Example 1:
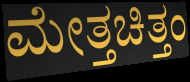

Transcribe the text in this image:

ಮೇತ್ತಚಿತ್ತಂ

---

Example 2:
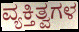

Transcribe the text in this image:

ವ್ಯಕ್ತಿತ್ವಗಳ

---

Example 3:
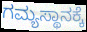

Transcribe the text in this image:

ಗಮ್ಯಸ್ಥಾನಕ್ಕೆ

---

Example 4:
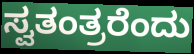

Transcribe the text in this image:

ಸ್ವತಂತ್ರರೆಂದು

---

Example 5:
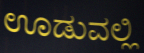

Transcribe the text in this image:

ಊಡುವಲ್ಲಿ